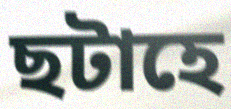
ছটাহে